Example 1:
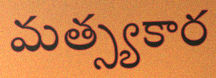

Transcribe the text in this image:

మత్స్యకార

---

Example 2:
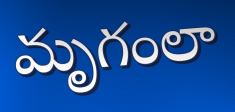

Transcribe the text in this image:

మృగంలా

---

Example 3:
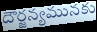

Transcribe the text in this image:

దౌర్జన్యమునకు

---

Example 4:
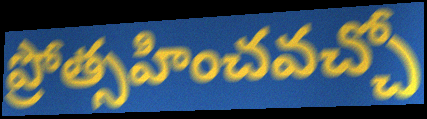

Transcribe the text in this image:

ప్రోత్సహించవచ్చో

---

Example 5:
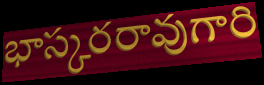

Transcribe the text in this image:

భాస్కరరావుగారి